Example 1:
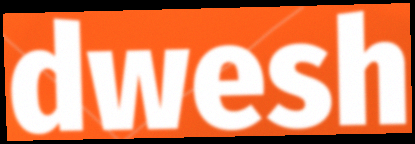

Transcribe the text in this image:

dwesh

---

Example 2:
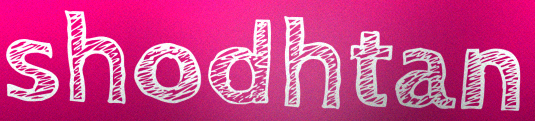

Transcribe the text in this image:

shodhtan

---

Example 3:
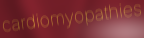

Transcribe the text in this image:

cardiomyopathies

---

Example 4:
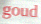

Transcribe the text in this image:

goud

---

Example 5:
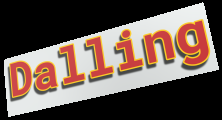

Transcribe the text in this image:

Dalling